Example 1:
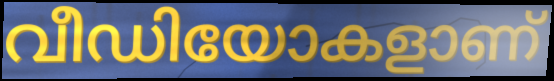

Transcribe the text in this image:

വീഡിയോകളാണ്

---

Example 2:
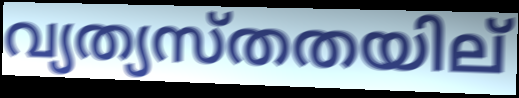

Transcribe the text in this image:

വ്യത്യസ്തതയില്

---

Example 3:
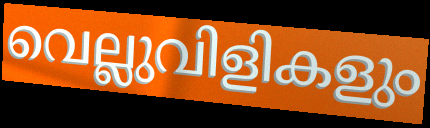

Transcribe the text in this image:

വെല്ലുവിളികളും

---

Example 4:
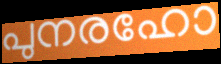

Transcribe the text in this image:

പുനരഹോ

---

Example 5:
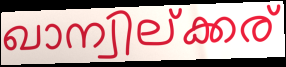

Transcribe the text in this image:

ഖാന്വില്ക്കര്